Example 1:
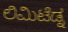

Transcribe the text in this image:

ಲಿಮಿಟೆಡ್ನ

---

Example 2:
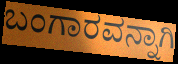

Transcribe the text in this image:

ಬಂಗಾರವನ್ನಾಗಿ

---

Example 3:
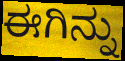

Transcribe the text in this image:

ಈಗಿನ್ನು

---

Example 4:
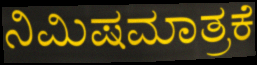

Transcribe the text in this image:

ನಿಮಿಷಮಾತ್ರಕೆ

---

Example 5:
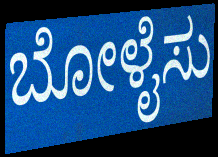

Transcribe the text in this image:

ಬೋಳೈಸು